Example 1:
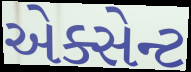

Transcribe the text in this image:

એક્સેન્ટ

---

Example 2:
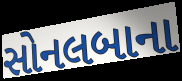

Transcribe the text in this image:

સોનલબાના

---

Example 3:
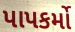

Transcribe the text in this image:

પાપકર્મો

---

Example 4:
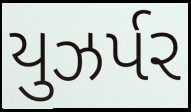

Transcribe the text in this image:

યુઝર્પર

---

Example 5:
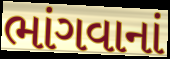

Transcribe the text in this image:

ભાંગવાનાં